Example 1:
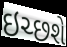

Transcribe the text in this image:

ઇચ્છશે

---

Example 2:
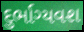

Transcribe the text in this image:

દુર્ભાગ્યવશ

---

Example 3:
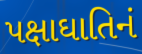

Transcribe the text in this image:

પક્ષાઘાતિનં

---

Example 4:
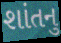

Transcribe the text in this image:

શાંતનુ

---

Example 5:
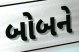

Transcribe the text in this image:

બોબને